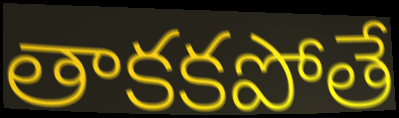
తాకకపోతే